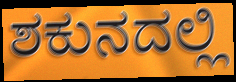
ಶಕುನದಲ್ಲಿ